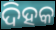
ଦିହକ